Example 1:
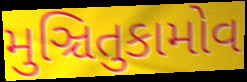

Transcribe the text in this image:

મુઞ્ચિતુકામોવ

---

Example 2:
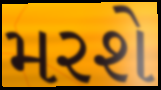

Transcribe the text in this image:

મરશે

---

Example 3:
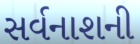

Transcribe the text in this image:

સર્વનાશની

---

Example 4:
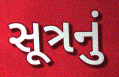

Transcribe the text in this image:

સૂત્રનું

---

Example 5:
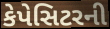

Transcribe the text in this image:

કેપેસિટરની